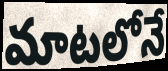
మాటలోనే